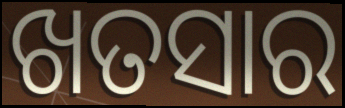
ଖତସାର